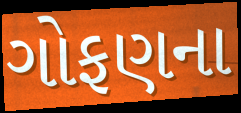
ગોફણના